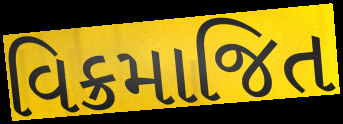
વિક્રમાજિત